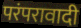
परंपरावादी